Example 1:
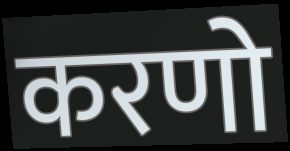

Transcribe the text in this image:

करणो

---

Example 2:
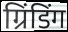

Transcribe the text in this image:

ग्रिंडिंग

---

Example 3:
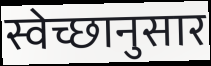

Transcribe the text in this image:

स्वेच्छानुसार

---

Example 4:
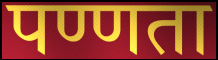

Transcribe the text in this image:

पण्णता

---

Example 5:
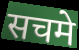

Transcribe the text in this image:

सचमे